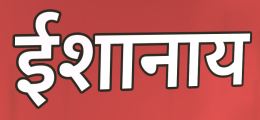
ईशानाय